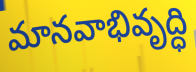
మానవాభివృద్ధి